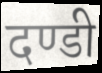
दण्डी